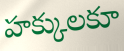
హక్కులకూ